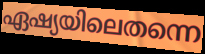
ഏഷ്യയിലെതന്നെ